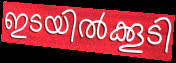
ഇടയിൽക്കൂടി